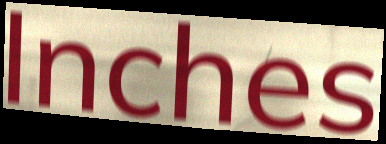
Inches